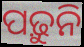
ପଢ଼ୁନି